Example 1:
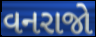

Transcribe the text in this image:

વનરાજો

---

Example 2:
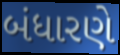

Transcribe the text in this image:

બંધારણે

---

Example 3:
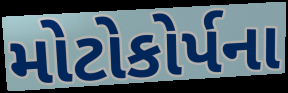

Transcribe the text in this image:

મોટોકોર્પના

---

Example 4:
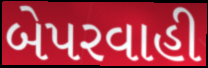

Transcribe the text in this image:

બેપરવાહી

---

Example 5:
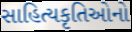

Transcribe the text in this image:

સાહિત્યકૃતિઓનો